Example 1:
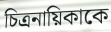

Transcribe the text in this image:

চিত্রনায়িকাকে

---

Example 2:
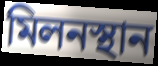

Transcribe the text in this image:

মিলনস্থান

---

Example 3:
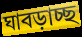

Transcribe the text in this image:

ঘাবড়াচ্ছ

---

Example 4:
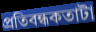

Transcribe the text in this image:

প্রতিবন্ধকতাটা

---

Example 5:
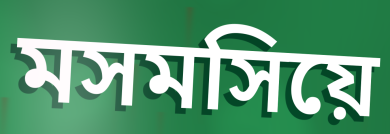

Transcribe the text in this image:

মসমসিয়ে